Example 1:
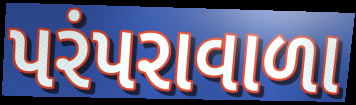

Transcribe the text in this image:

પરંપરાવાળા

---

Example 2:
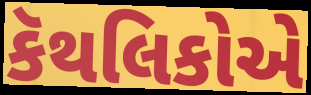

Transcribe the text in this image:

કૅથલિકોએ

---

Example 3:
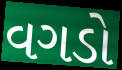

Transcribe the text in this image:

વગડો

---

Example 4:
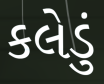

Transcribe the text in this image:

કલેડું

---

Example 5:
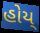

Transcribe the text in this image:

હોય્